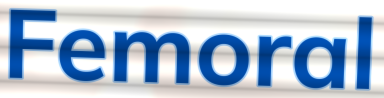
Femoral